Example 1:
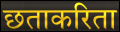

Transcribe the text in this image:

छताकरिता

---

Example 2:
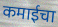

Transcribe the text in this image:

कमाईचा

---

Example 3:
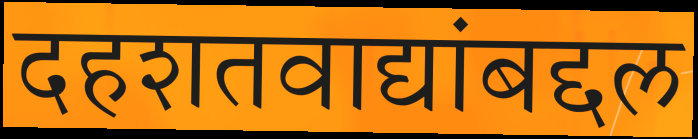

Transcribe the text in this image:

दहशतवाद्यांबद्दल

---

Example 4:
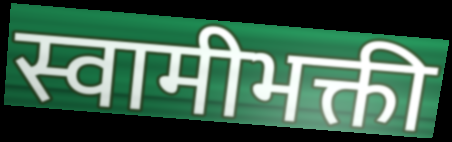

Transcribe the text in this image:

स्वामीभक्ती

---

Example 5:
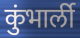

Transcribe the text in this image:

कुंभार्ली